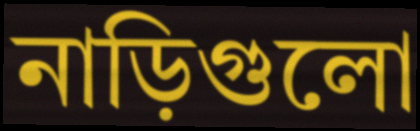
নাড়িগুলো